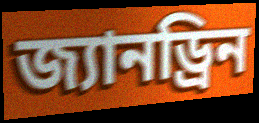
জ্যানড্রিন